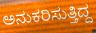
ಅನುಕರಿಸುತ್ತಿದ್ದ